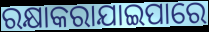
ରକ୍ଷାକରାଯାଇପାରେ